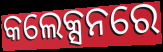
କଲେକ୍ସନରେ